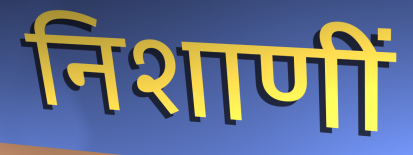
निशाणीं